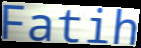
Fatih